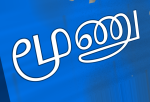
மூணு